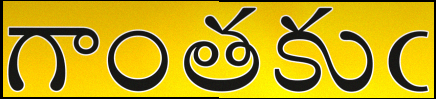
గాంతకుఁ